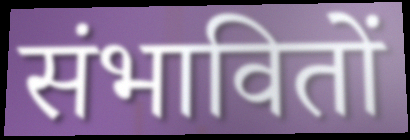
संभावितों